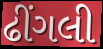
ઢીંગલી